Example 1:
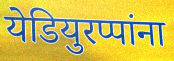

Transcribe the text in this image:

येडियुरप्पांना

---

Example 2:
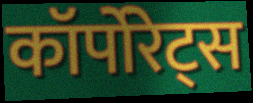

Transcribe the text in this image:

कॉर्पोरेट्स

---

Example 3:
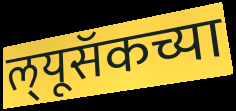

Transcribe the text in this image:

ल्यूसॅकच्या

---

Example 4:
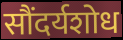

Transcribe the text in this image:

सौंदर्यशोध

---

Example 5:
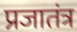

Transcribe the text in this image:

प्रजातंत्र